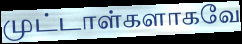
முட்டாள்களாகவே